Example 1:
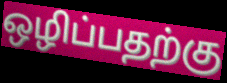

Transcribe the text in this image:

ஒழிப்பதற்கு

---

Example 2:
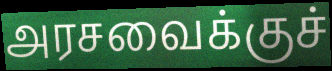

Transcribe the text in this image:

அரசவைக்குச்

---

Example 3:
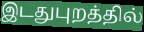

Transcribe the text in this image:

இடதுபுறத்தில்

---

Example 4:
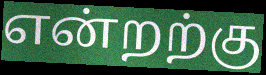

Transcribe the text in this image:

என்றற்கு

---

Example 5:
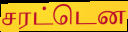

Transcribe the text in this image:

சரட்டென